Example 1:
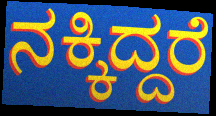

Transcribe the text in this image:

ನಕ್ಕಿದ್ದರೆ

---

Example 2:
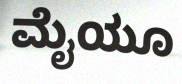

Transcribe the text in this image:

ಮೈಯೂ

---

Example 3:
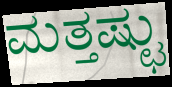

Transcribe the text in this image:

ಮತ್ತಷ್ಟು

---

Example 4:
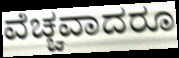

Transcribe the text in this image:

ವೆಚ್ಚವಾದರೂ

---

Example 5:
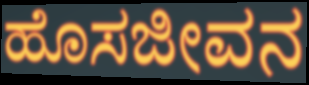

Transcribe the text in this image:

ಹೊಸಜೀವನ